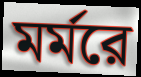
মর্মরে